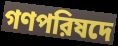
গণপরিষদে